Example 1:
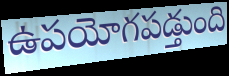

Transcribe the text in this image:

ఉపయోగపడ్తుంది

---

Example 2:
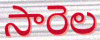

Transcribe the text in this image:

సారెల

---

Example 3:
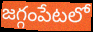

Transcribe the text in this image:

జగ్గంపేటలో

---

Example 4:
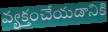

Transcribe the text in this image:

వ్యక్తంచేయడానికి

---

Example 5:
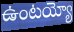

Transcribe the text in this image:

ఉంటయ్యో